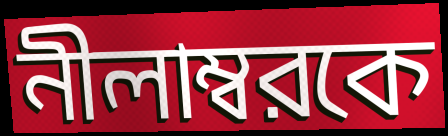
নীলাম্বরকে